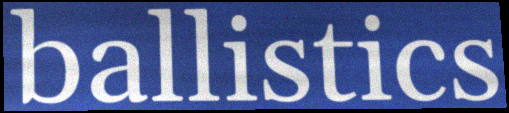
ballistics